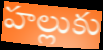
హల్లుకు